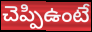
చెప్పిఉంటే